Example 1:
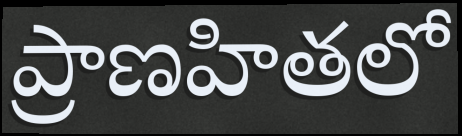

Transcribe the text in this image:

ప్రాణహితలో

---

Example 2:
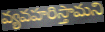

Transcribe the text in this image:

వ్యవహరిస్తామని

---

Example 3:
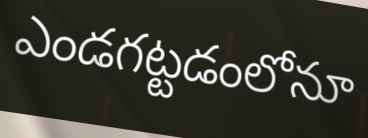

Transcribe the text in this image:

ఎండగట్టడంలోనూ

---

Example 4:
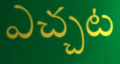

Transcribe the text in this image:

ఎచ్చట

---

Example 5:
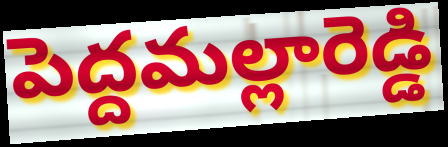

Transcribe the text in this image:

పెద్దమల్లారెడ్డి